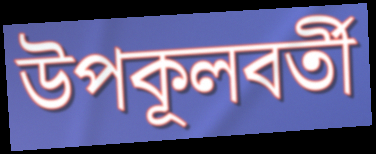
উপকূলবর্তী